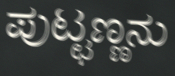
ಪುಟ್ಟಣ್ಣನು